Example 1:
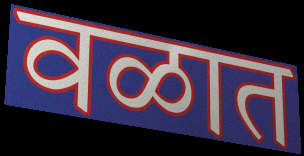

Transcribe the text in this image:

वळात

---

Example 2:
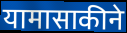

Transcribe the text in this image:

यामासाकीने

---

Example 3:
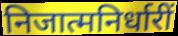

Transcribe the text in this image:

निजात्मनिर्धारीं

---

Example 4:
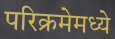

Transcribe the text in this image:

परिक्रमेमध्ये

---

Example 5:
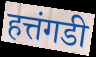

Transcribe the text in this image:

हत्तंगडी